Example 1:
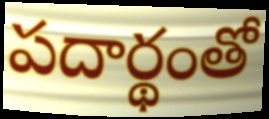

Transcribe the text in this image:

పదార్థంతో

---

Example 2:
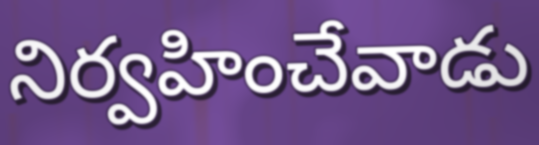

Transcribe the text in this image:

నిర్వహించేవాడు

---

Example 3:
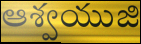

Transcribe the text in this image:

ఆశ్వయుజి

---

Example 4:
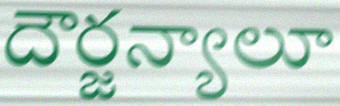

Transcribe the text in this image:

దౌర్జన్యాలూ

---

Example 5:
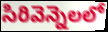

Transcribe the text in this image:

సిరివెన్నెలలో